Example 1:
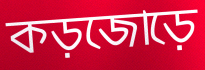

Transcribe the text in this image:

কড়জোড়ে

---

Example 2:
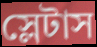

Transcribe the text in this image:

স্লেটাস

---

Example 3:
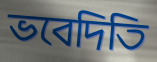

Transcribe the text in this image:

ভবেদিতি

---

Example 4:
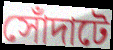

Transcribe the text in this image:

সোঁদাটে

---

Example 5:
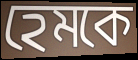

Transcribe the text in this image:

হেমকে